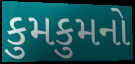
કુમકુમનો